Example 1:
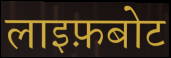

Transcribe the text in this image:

लाइफ़बोट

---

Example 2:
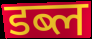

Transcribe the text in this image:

डब्ल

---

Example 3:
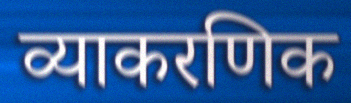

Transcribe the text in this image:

व्याकरणिक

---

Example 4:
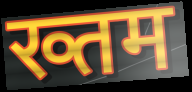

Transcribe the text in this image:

ख्तम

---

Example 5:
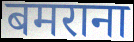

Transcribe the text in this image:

बमराना